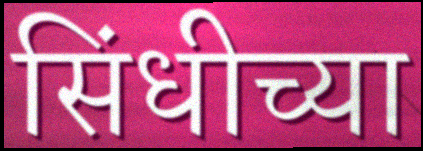
सिंधीच्या